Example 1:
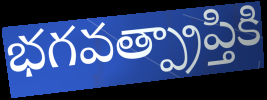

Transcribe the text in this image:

భగవత్ప్రాప్తికి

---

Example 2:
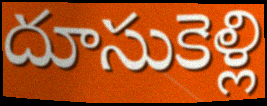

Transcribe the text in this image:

దూసుకెళ్లి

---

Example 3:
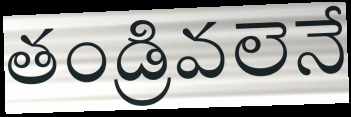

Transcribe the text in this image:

తండ్రివలెనే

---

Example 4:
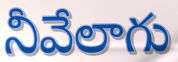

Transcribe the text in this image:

నీవేలాగు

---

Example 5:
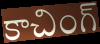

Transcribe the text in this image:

కాచింగ్